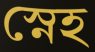
স্নেহ